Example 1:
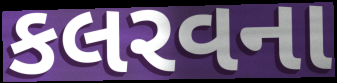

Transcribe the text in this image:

કલરવના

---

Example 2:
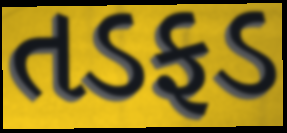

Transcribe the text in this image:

તડફડ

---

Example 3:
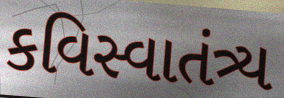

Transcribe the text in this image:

કવિસ્વાતંત્ર્ય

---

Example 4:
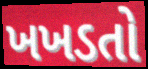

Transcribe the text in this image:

ખખડતો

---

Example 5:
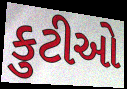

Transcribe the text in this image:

કુટીઓ